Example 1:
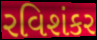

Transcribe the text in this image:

રવિશંકર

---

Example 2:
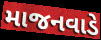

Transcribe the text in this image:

માજનવાડે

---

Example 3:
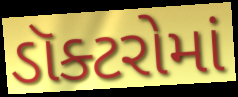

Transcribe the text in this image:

ડૉક્ટરોમાં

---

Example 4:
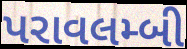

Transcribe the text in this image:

પરાવલમ્બી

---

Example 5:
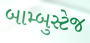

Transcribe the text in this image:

બામ્બુસ્ટેજ